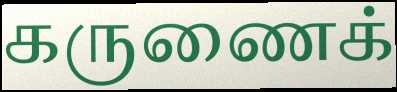
கருணைக்